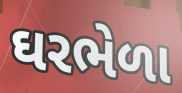
ઘરભેળા